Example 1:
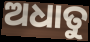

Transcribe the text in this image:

ଅଧାତୁ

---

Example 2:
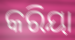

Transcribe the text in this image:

କରିୟା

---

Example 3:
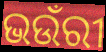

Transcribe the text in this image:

ଭଉଁରୀ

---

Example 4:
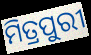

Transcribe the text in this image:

ମିତ୍ରପୁରୀ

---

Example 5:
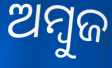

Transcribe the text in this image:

ଅମ୍ୱୁଜ